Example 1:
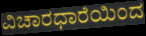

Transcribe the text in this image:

ವಿಚಾರಧಾರೆಯಿಂದ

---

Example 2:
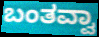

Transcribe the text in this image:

ಬಂತವ್ವಾ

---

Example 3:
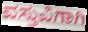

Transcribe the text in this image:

ವಸ್ತುವಿಗಾಗಿ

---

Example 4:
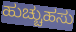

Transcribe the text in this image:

ಹುಚ್ಚುಹಸು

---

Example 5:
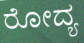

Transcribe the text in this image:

ರೋದ್ಯ